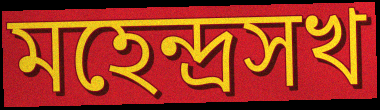
মহেন্দ্রসখ